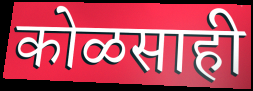
कोळसाही